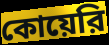
কোয়েরি